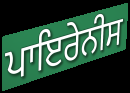
ਪਾਇਰੇਨੀਸ